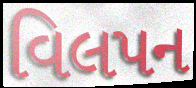
વિલપન